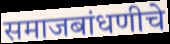
समाजबांधणीचे